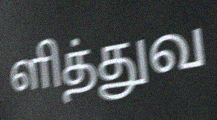
ளித்துவ